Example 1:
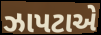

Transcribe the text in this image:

ઝાપટાએ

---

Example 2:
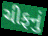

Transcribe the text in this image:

ચીફનું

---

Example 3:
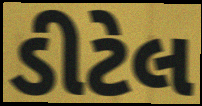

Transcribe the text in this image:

ડીટેલ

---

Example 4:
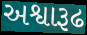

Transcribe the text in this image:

અશ્વારૂઢ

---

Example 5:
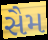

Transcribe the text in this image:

સૈમ